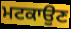
ਮਟਕਾਉਣ